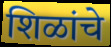
शिळांचे